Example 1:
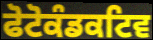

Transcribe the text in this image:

ਫੋਟੋਕੰਡਕਟਿਵ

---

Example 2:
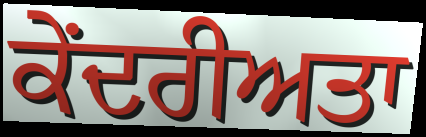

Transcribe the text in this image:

ਕੇਂਦਰੀਅਤਾ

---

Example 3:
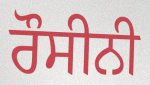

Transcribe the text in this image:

ਰੌਸੀਨੀ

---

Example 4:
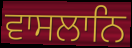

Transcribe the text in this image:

ਵਾਸਲਾਨਿ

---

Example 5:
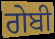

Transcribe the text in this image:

ਗੇਬੀ